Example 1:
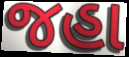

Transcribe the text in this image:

જહા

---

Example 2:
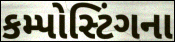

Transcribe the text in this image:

કમ્પોસ્ટિંગના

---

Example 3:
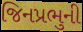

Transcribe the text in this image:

જિનપ્રભુની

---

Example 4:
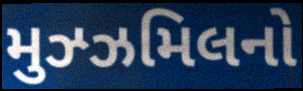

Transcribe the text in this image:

મુઝ્ઝમિલનો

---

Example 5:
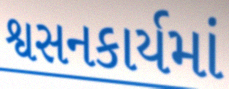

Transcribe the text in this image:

શ્વસનકાર્યમાં